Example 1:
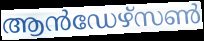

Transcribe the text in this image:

ആൻഡേഴ്സൺ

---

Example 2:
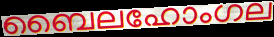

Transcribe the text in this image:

ബൈലഹോംഗല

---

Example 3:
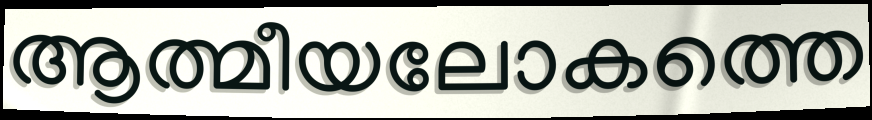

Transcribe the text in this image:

ആത്മീയലോകത്തെ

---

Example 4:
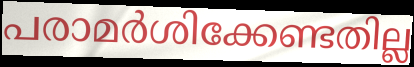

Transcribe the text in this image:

പരാമർശിക്കേണ്ടതില്ല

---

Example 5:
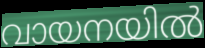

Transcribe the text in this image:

വായനയിൽ